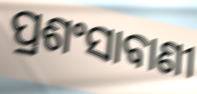
ପ୍ରଶଂସାବାଣୀ